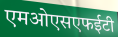
एमओएसएफईटी